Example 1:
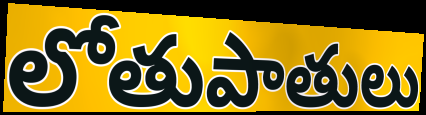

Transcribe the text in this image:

లోతుపాతులు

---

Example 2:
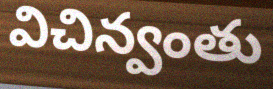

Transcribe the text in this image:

విచిన్వంతు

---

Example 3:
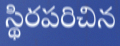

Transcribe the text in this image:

స్థిరపరిచిన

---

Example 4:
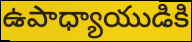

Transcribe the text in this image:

ఉపాధ్యాయుడికి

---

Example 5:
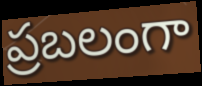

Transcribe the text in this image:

ప్రబలంగా